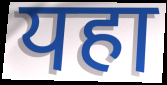
यहा